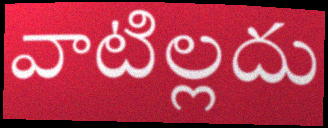
వాటిల్లదు